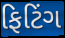
ફિટિંગ